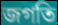
জগতি